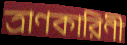
ত্রাণকারিণী